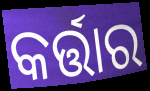
କର୍ତ୍ତାର